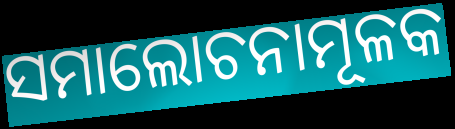
ସମାଲୋଚନାମୂଳକ